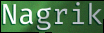
Nagrik